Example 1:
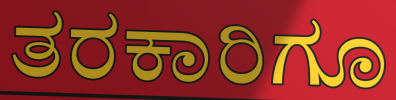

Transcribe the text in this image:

ತರಕಾರಿಗೂ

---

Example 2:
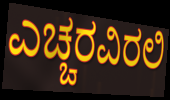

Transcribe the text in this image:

ಎಚ್ಚರವಿರಲಿ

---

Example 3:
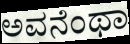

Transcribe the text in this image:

ಅವನೆಂಥಾ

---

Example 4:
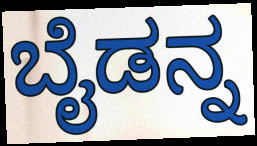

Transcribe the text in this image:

ಬೈಡನ್ನ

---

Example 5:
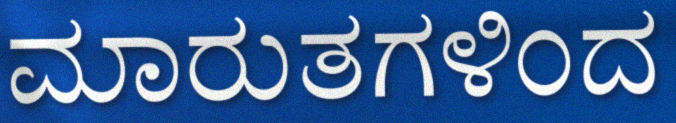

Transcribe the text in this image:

ಮಾರುತಗಳಿಂದ